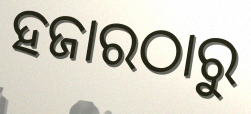
ହଜାରଠାରୁ